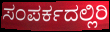
ಸಂಪರ್ಕದಲ್ಲಿರಿ